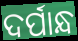
ଦର୍ପାନ୍ଧ